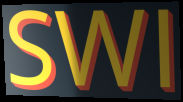
SWI